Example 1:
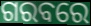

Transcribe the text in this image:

ଗରବରେ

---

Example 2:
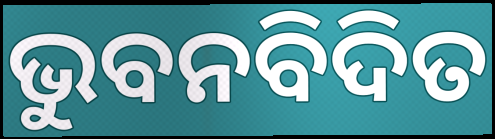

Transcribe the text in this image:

ଭୁବନବିଦିତ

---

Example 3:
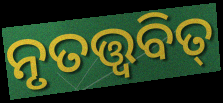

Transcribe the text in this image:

ନୃତତ୍ତ୍ୱବିତ୍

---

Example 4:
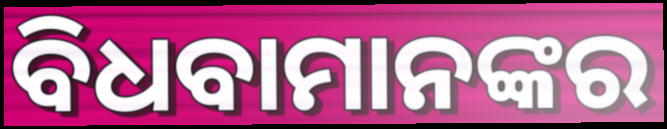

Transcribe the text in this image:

ବିଧବାମାନଙ୍କର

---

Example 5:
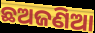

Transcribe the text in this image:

ଛଅଜଣିଆ